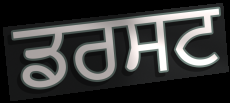
ਡਰਸਟ